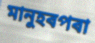
মানুহৰপৰা